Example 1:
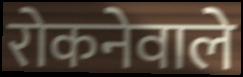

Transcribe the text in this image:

रोकनेवाले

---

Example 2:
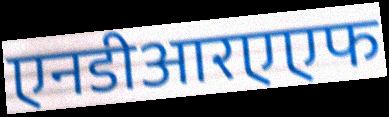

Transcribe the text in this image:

एनडीआरएएफ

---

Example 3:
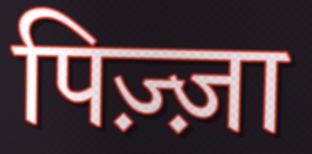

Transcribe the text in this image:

पिज़्ज़ा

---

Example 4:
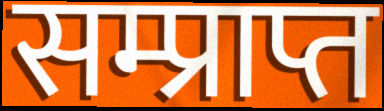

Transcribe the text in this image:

सम्प्राप्त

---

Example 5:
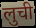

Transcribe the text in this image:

लुची